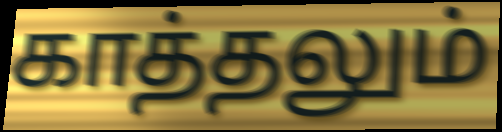
காத்தலும்